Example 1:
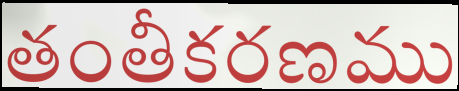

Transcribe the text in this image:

తంతీకరణము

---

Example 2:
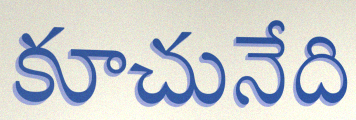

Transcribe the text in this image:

కూచునేది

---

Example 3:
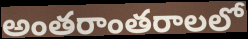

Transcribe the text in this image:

అంతరాంతరాలలో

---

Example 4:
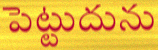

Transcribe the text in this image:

పెట్టుదును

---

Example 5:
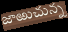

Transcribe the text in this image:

జాఱుచున్న